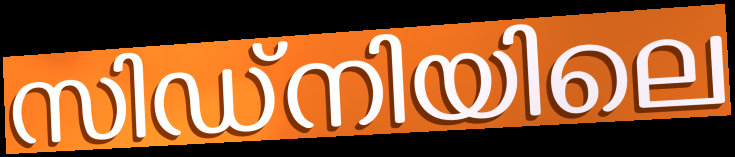
സിഡ്നിയിലെ